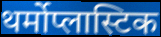
थर्मोप्लास्टिक